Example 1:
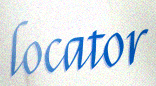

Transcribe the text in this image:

locator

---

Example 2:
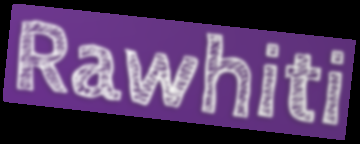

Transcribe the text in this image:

Rawhiti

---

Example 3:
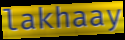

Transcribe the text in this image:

lakhaay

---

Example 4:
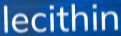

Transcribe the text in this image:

lecithin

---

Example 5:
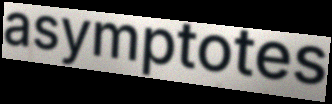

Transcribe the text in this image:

asymptotes